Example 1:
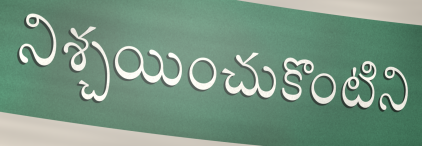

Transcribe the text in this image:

నిశ్చయించుకొంటిని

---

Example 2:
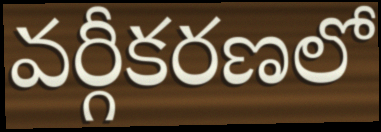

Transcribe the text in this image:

వర్గీకరణలో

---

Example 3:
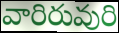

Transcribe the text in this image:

వారిరువురి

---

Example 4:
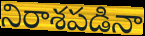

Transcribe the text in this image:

నిరాశపడినా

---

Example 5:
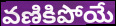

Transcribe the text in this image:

వణికిపోయే